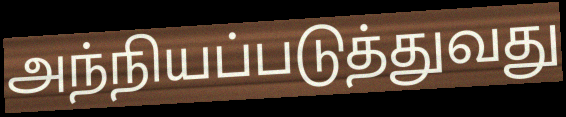
அந்நியப்படுத்துவது